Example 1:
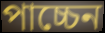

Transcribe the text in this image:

পাচ্চেন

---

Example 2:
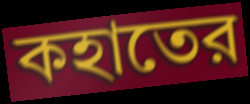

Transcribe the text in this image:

কহাতের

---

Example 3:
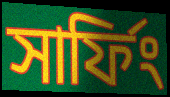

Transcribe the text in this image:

সার্ফিং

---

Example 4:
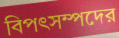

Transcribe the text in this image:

বিপৎসম্পদের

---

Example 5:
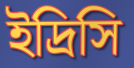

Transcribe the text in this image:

ইদ্রিসি